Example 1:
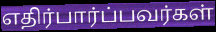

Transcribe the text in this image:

எதிர்பார்ப்பவர்கள்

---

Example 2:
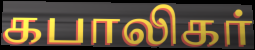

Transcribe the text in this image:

கபாலிகர்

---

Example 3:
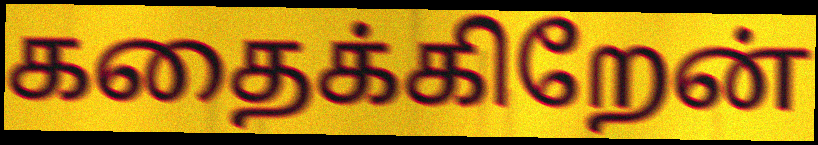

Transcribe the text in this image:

கதைக்கிறேன்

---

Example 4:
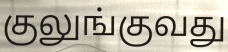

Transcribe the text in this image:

குலுங்குவது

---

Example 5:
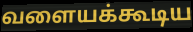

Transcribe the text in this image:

வளையக்கூடிய